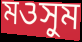
মওসুম